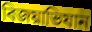
বিজয়াভিযান